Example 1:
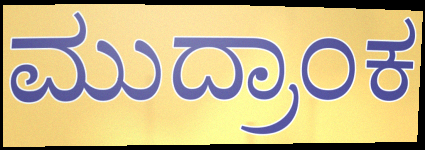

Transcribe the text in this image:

ಮುದ್ರಾಂಕ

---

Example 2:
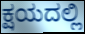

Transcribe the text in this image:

ಕ್ಷಯದಲ್ಲಿ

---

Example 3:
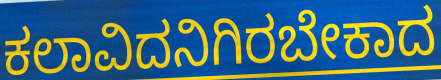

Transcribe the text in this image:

ಕಲಾವಿದನಿಗಿರಬೇಕಾದ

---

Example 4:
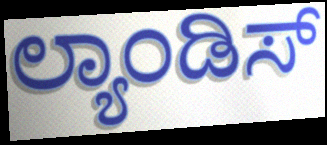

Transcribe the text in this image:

ಲ್ಯಾಂಡಿಸ್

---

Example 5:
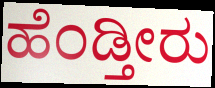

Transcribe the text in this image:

ಹೆಂಡ್ತೀರು